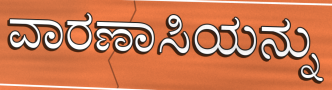
ವಾರಣಾಸಿಯನ್ನು